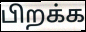
பிறக்க